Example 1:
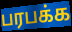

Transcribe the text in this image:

பரபக்க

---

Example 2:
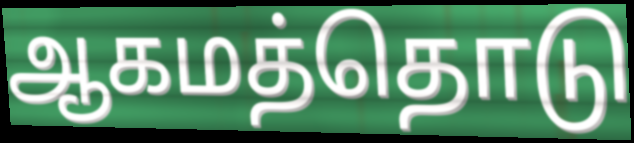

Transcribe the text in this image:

ஆகமத்தொடு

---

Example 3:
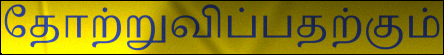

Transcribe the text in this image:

தோற்றுவிப்பதற்கும்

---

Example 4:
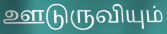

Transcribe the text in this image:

ஊடுருவியும்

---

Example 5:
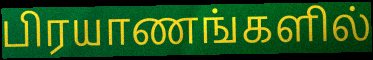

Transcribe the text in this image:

பிரயாணங்களில்